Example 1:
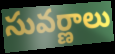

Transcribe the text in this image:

సువర్ణాలు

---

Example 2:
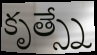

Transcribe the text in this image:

కృత్స్నే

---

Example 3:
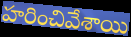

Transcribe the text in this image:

హరించివేశాయి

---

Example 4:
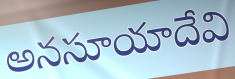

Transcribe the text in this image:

అనసూయాదేవి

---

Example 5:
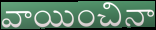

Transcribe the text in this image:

వాయించినా